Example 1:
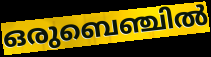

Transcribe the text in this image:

ഒരുബെഞ്ചിൽ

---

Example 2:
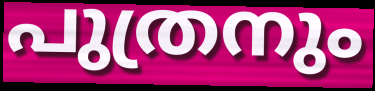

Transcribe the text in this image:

പുത്രനും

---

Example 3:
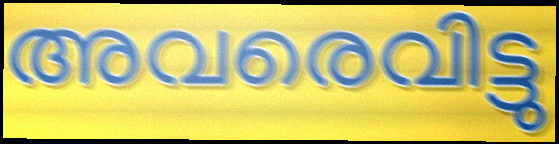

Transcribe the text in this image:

അവരെവിട്ടു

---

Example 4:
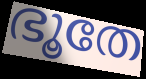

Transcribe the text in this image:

ഭൂതേ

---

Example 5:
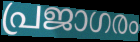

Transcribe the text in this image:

പ്രജാഗരം